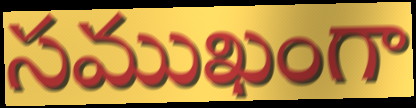
సముఖంగా